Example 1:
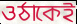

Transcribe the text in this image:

ওঠাকেই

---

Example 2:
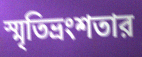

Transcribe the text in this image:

স্মৃতিভ্রংশতার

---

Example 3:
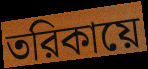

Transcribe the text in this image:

তরিকায়ে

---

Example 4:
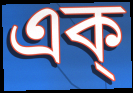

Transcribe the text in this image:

এক্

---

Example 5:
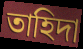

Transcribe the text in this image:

তাহিদা